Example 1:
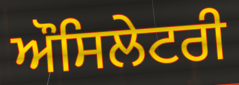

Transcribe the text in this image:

ਔਸਿਲੇਟਰੀ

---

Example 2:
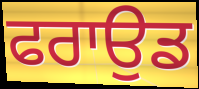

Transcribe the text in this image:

ਫਰਾਉਡ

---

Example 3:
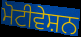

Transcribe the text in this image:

ਮੋਟੀਵੇਸ਼ਨ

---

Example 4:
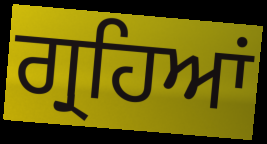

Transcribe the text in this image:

ਗ੍ਰਹਿਆਂ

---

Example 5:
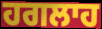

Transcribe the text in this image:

ਹਗਲਾਹ